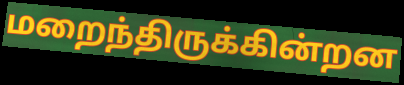
மறைந்திருக்கின்றன